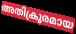
അതിക്രൂരമായ